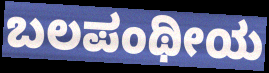
ಬಲಪಂಥೀಯ